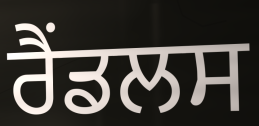
ਰੈਂਡਲਸ